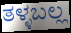
ತಳ್ಳಬಲ್ಲ